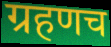
ग्रहणच